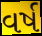
વર્ષ